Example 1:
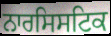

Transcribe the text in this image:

ਨਾਰਸਿਸਟਿਕ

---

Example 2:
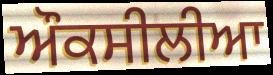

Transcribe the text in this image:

ਔਕਸੀਲੀਆ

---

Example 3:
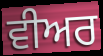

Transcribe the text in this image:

ਵੀਅਰ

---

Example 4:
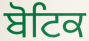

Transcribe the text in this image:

ਬੋਟਿਕ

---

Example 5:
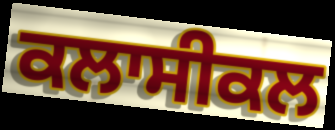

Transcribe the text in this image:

ਕਲਾਸੀਕਲ